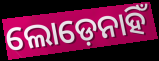
ଲୋଡ଼େନାହିଁ